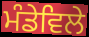
ਮੰਡੇਵਿਲੇ